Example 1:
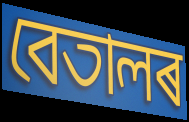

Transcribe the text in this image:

বেতালৰ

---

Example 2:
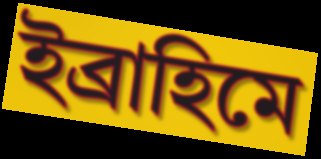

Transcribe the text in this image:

ইব্ৰাহিমে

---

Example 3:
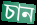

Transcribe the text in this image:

চান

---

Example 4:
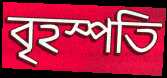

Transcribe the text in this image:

বৃহস্পতি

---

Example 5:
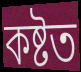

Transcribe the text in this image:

কষ্টত